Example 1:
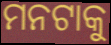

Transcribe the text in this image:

ମନଟାକୁ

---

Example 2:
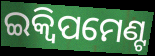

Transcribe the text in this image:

ଇକ୍ୱିପମେଣ୍ଟ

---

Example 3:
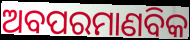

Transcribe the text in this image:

ଅବପରମାଣବିକ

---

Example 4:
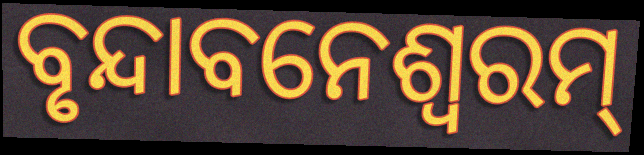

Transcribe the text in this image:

ବୃନ୍ଦାବନେଶ୍ୱରମ୍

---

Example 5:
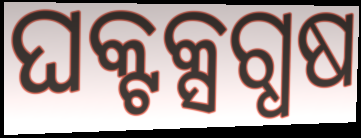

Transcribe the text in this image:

ଘକ୍ଟକ୍ସଗ୍ଧଷ